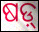
ଷଡ଼୍